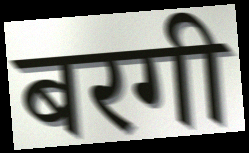
बरगी